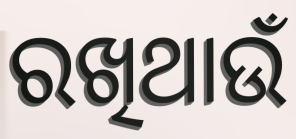
ରଖିଥାଉଁ